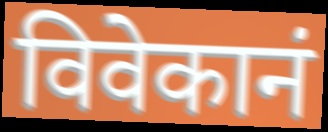
विवेकानं